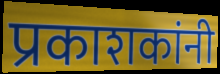
प्रकाशकांनी